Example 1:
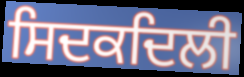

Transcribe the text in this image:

ਸਿਦਕਦਿਲੀ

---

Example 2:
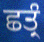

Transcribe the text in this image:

ਛਤ੍ਰੰ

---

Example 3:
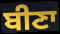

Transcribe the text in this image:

ਬੀਣਾ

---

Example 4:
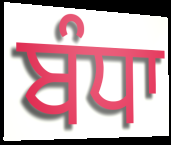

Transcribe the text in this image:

ਬੰਧਾ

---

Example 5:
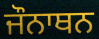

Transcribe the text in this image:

ਜੌਨਾਥਨ